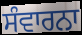
ਸੰਵਾਰਨਾ